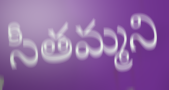
సీతమ్మని